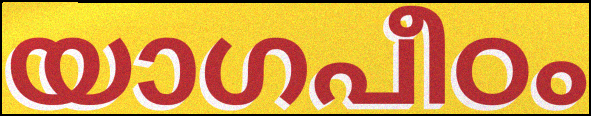
യാഗപീഠം